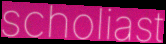
scholiast